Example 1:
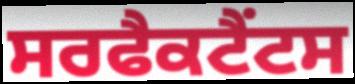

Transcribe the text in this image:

ਸਰਫੈਕਟੈਂਟਸ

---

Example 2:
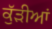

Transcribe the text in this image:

ਕੁੱੜੀਆਂ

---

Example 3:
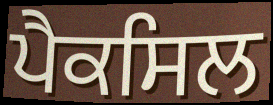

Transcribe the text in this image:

ਪੈਕਸਿਲ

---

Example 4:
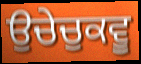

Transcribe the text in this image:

ਉਚੇਚੁਕਵੂ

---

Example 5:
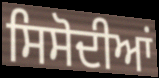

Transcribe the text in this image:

ਸਿਸੋਦੀਆਂ